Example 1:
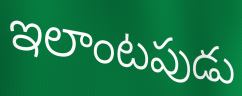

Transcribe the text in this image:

ఇలాంటపుడు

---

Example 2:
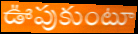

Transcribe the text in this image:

ఊపుకుంటూ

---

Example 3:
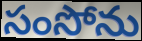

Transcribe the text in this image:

సంసోను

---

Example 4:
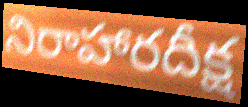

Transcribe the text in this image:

నిరాహారదీక్ష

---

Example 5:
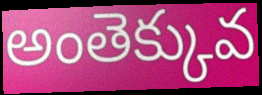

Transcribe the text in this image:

అంతెక్కువ